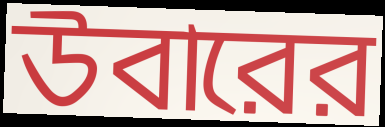
উবারের